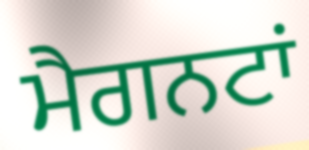
ਮੈਗਨਟਾਂ